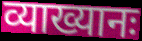
व्याख्यानः